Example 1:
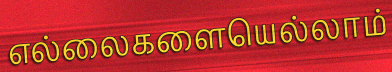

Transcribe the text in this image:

எல்லைகளையெல்லாம்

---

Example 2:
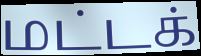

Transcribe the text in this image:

மட்டக்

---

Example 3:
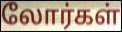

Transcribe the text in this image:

லோர்கள்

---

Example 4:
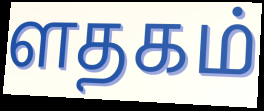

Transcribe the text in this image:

ளதகம்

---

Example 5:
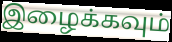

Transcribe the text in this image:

இழைக்கவும்